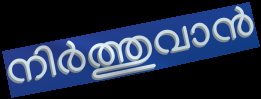
നിർത്തുവാൻ